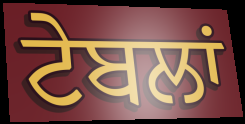
ਟੇਬਲਾਂ